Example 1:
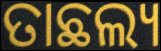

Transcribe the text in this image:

ତାଛଲ୍ୟ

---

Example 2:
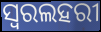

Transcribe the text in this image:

ସ୍ୱରଲହରୀ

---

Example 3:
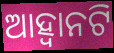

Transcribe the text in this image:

ଆହ୍ଵାନଟି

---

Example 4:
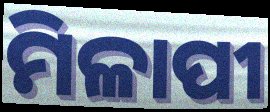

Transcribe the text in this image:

ମିଳାପୀ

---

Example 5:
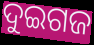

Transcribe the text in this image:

ଦୁଇଗଜ